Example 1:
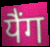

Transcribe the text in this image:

यैंग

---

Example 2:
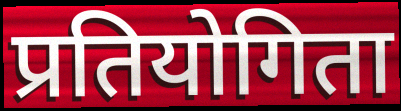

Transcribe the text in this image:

प्रतियोगिता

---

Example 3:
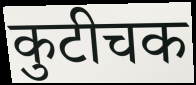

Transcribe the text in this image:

कुटीचक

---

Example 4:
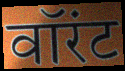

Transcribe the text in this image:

वॉरंट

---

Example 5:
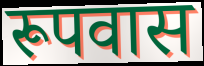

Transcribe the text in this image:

रूपवास